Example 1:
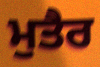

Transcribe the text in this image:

ਮੁਤੈਰ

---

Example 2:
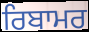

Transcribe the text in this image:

ਰਿਬਾਮਰ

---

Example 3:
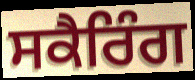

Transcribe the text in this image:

ਸਕੈਰਿੰਗ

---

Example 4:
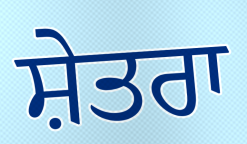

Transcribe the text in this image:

ਸ਼ੇਤਰਾ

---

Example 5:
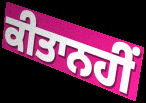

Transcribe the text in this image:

ਕੀਤਾਨਹੀਂ